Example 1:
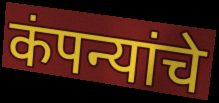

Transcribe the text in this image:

कंपन्यांचे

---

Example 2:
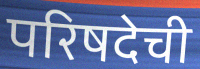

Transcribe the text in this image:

परिषदेची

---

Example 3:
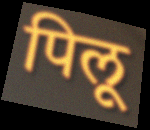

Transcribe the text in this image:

पिलू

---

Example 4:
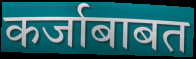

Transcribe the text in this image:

कर्जाबाबत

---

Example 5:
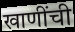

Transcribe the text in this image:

खाणींची